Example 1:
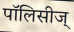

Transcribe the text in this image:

पॉलिसीज्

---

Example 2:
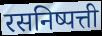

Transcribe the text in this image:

रसनिष्पत्ती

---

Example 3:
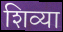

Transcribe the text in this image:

शिव्या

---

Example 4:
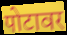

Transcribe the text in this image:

पोटावर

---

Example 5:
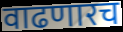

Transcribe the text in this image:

वाढणारच